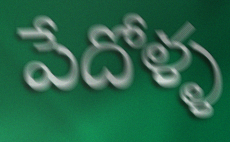
పేదోళ్ళ